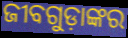
ଜୀବଗୁଡ଼ାଙ୍କର